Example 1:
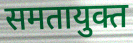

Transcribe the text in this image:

समतायुक्त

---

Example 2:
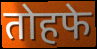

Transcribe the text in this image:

तोहफे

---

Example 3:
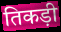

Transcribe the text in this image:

तिकड़ी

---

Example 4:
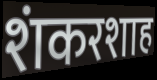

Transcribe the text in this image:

शंकरशाह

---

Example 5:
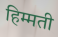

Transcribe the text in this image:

हिम्मती